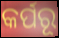
କର୍ପରୂ